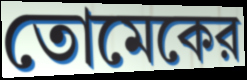
তোমেকের